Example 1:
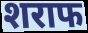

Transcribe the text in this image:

शराफ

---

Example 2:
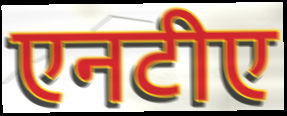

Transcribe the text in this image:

एनटीए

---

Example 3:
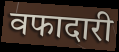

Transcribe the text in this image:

वफादारी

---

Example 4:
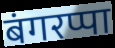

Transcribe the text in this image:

बंगरप्पा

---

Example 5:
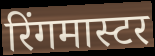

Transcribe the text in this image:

रिंगमास्टर